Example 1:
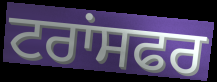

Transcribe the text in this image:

ਟਰਾਂਸਫਰ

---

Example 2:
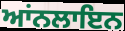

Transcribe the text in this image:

ਆਂਨਲਾਇਨ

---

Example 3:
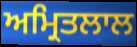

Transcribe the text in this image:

ਅਮ੍ਰਿਤਲਾਲ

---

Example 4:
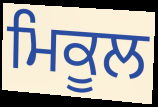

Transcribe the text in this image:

ਮਿਕੂਲ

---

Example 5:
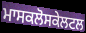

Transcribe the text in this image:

ਮਾਸਕਲੋਸਕੇਲਟਲ